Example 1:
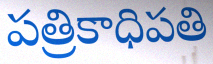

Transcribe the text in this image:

పత్రికాధిపతి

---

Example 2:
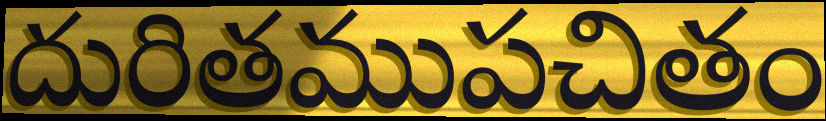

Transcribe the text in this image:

దురితముపచితం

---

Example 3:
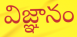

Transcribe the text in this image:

విజ్ఞానం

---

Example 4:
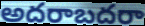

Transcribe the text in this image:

అదరాబదరా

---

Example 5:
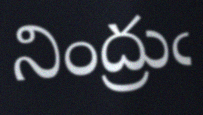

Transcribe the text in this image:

నింద్రుఁ